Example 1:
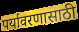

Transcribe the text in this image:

पर्यावरणासाठी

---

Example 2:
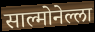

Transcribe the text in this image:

साल्मोनेल्ला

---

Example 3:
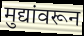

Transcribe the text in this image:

मुद्यांवरून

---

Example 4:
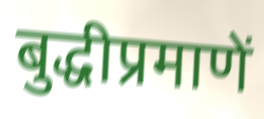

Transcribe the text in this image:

बुद्धीप्रमाणें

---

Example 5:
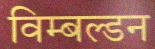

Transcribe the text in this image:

विम्बल्डन